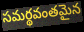
సమర్థవంతమైన